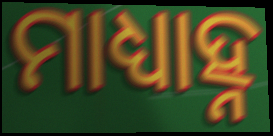
ମାଧ୍ୟାହ୍ନ